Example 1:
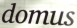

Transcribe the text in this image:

domus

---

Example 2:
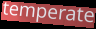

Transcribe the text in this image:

temperate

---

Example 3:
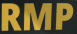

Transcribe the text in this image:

RMP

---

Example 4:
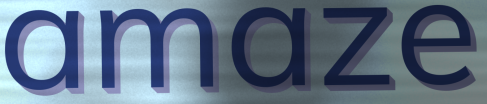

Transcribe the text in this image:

amaze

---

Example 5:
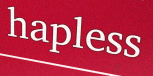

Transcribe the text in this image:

hapless